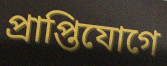
প্রাপ্তিযোগে